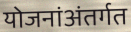
योजनांअंतर्गत